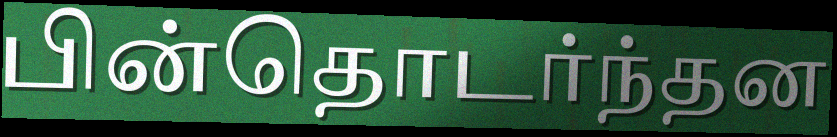
பின்தொடர்ந்தன